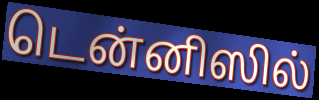
டென்னிஸில்